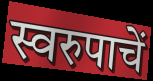
स्वरुपाचें